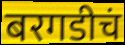
बरगडीचं